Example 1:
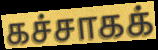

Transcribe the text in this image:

கச்சாகக்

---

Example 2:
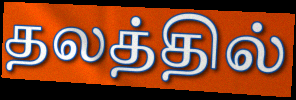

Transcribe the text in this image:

தலத்தில்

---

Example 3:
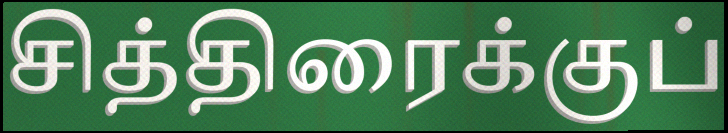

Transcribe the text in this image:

சித்திரைக்குப்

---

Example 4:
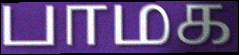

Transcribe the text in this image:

பாமக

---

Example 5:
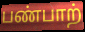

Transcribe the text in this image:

பண்பாற்